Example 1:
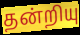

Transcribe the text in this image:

தன்றியு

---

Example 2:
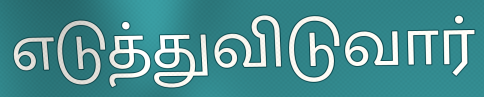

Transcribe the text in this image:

எடுத்துவிடுவார்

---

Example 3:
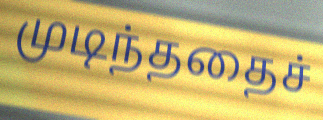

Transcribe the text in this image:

முடிந்ததைச்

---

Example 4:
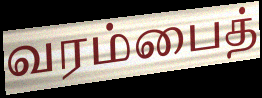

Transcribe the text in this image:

வரம்பைத்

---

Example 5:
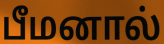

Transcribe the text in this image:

பீமனால்